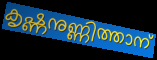
കൃഷ്ണനുണ്ണിത്താന്